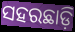
ସହରଛାଡ଼ି